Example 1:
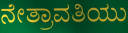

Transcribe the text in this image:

ನೇತ್ರಾವತಿಯು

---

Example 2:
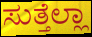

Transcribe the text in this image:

ಸುತ್ತೆಲ್ಲಾ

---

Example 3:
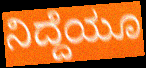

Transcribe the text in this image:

ನಿದ್ದೆಯೂ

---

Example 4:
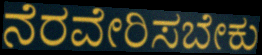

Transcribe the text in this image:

ನೆರವೇರಿಸಬೇಕು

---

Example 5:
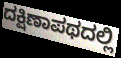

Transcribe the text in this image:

ದಕ್ಷಿಣಾಪಥದಲ್ಲಿ